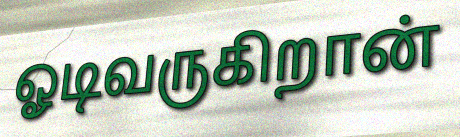
ஓடிவருகிறான்